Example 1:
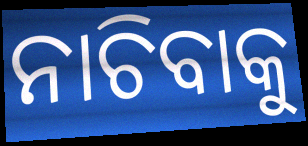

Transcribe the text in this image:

ନାଚିବାକୁ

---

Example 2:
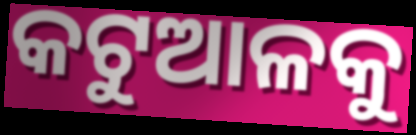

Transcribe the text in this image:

କଟୁଆଳକୁ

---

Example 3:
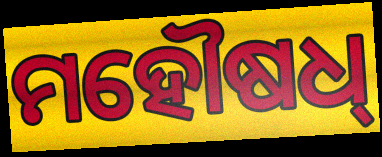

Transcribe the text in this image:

ମହୌଷଧ୍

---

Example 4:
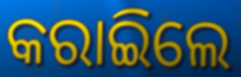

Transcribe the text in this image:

କରାଇିଲେ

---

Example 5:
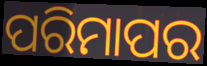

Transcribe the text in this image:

ପରିମାପର